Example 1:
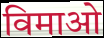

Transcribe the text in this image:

विमाओ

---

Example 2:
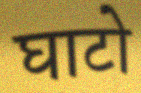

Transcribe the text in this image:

घाटो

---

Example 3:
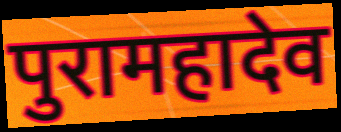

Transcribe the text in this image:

पुरामहादेव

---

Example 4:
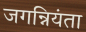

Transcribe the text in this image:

जगन्नियंता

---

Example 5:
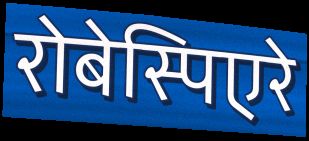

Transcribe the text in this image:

रोबेस्पिएरे